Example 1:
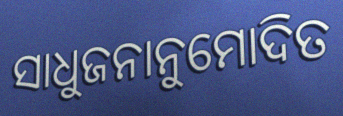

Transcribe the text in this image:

ସାଧୁଜନାନୁମୋଦିତ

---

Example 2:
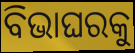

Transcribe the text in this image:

ବିଭାଘରକୁ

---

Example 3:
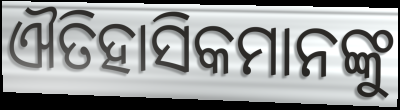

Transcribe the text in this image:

ଐତିହାସିକମାନଙ୍କୁ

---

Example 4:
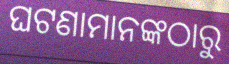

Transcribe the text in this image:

ଘଟଣାମାନଙ୍କଠାରୁ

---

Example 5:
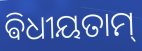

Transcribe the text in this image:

ଵିଧୀୟତାମ୍